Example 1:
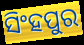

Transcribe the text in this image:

ସିଂହପୁର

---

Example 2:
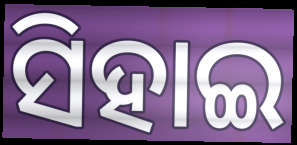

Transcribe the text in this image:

ସିହାଇ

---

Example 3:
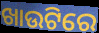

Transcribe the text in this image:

ଖାଉଟିରେ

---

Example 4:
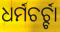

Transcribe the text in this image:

ଧର୍ମଚର୍ଚ୍ଚା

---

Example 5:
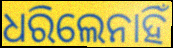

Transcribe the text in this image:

ଧରିଲେନାହିଁ